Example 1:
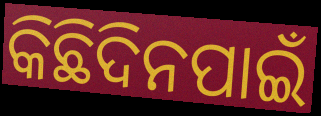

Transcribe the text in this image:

କିଛିଦିନପାଇଁ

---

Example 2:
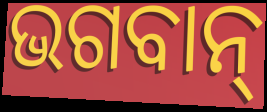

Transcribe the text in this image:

ଭଗବାନ୍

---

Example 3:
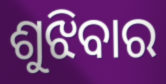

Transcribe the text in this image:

ଶୁଝିବାର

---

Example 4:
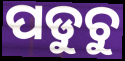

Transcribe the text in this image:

ପଡୁଚୁ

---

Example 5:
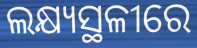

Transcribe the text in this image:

ଲକ୍ଷ୍ୟସ୍ଥଳୀରେ